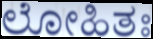
ಲೋಹಿತಃ